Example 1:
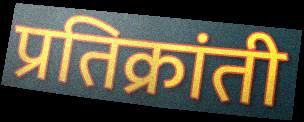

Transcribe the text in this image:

प्रतिक्रांती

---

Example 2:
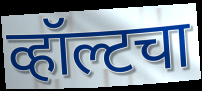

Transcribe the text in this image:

व्हॉल्टचा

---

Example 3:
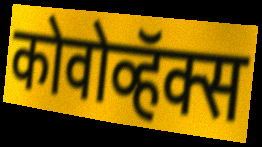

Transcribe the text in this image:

कोवोव्हॅक्स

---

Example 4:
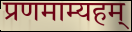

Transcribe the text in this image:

प्रणमाम्यहम्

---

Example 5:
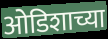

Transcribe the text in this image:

ओडिशाच्या